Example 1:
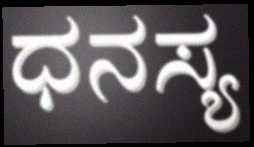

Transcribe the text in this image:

ಧನಸ್ಯ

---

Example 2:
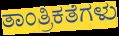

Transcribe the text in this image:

ತಾಂತ್ರಿಕತೆಗಳು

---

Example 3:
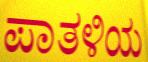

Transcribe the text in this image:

ಪಾತಳಿಯ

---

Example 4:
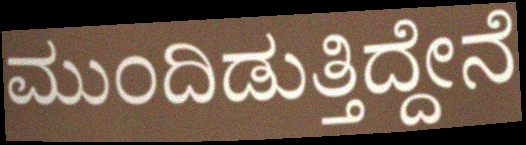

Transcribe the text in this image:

ಮುಂದಿಡುತ್ತಿದ್ದೇನೆ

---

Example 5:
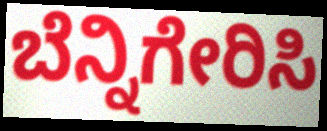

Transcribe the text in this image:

ಬೆನ್ನಿಗೇರಿಸಿ